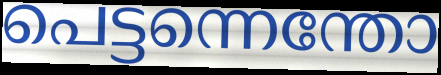
പെട്ടന്നെന്തോ